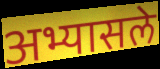
अभ्यासले